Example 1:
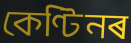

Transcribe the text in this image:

কেণ্টিনৰ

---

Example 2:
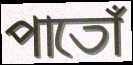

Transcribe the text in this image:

পাতোঁ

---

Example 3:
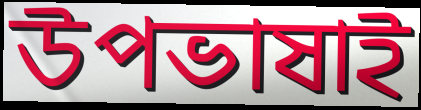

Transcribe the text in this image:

উপভাষাই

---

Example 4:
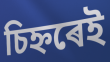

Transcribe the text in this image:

চিহ্নৰেই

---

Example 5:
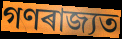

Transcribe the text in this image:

গণৰাজ্যত